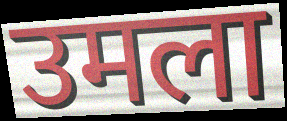
उमला